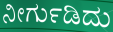
ನೀರ್ಗುಡಿದು